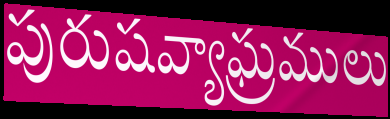
పురుషవ్యాఘ్రములు